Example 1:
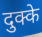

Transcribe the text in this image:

दुक्के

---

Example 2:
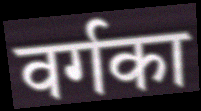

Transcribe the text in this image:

वर्गका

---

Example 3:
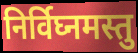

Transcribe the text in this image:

निर्विघ्नमस्तु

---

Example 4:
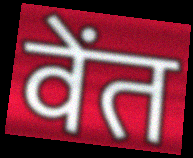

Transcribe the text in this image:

वेंत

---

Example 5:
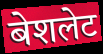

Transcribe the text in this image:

बेशलेट